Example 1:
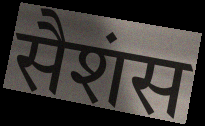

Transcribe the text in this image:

सैशंस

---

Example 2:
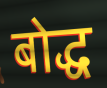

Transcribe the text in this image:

बोद्ध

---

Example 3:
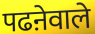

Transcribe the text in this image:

पढऩेवाले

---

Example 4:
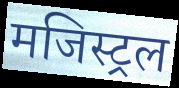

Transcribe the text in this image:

मजिस्ट्रल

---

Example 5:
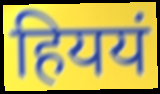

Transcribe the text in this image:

हिययं